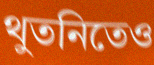
থুতনিতেও